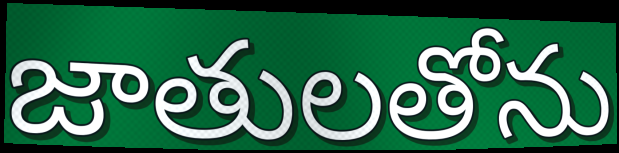
జాతులతోను